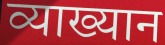
व्याख्यान